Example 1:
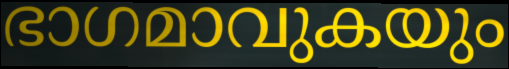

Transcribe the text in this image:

ഭാഗമാവുകയും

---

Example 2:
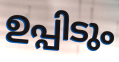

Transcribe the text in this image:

ഉപ്പിടും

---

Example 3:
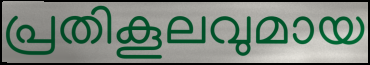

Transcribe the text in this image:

പ്രതികൂലവുമായ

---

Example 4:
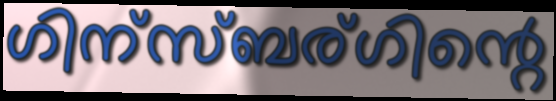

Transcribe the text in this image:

ഗിന്സ്ബര്ഗിന്റെ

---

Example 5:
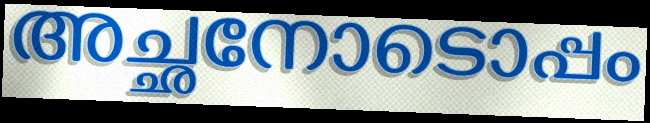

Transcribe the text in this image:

അച്ഛനോടൊപ്പം